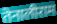
तेनालीराम